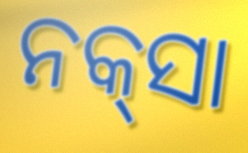
ନକ୍‍ସା